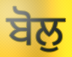
ਬੋਲੁ